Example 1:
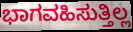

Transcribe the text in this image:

ಭಾಗವಹಿಸುತ್ತಿಲ್ಲ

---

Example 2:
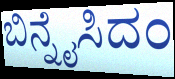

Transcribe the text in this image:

ಬಿನ್ನೈಸಿದಂ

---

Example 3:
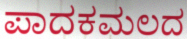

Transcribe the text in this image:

ಪಾದಕಮಲದ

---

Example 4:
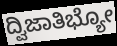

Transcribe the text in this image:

ದ್ವಿಜಾತಿಭ್ಯೋ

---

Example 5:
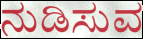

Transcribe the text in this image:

ನುಡಿಸುವ